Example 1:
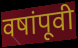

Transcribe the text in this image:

वषांपूवी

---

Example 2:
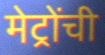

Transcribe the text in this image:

मेट्रोंची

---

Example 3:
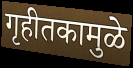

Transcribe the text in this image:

गृहीतकामुळे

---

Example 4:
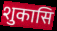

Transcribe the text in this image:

शुकासि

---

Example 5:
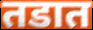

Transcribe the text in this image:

तडात